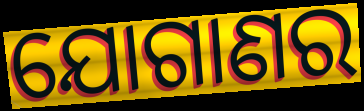
ଯୋଗାଣର